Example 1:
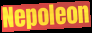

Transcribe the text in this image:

Nepoleon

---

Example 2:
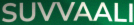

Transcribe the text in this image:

SUVVAALI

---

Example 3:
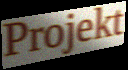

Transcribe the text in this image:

Projekt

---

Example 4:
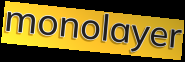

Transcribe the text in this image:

monolayer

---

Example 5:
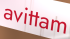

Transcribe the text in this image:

avittam